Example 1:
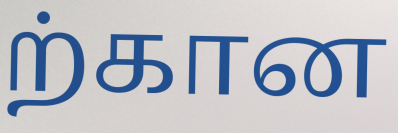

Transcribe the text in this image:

ற்கான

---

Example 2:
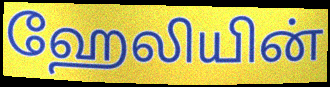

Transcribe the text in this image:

ஹேலியின்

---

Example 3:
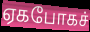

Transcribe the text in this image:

ஏகபோகச்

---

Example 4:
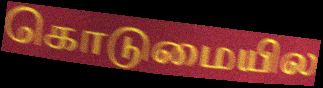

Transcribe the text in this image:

கொடுமையில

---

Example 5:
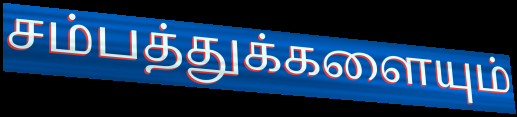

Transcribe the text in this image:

சம்பத்துக்களையும்